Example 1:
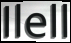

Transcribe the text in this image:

Ilell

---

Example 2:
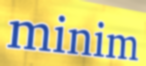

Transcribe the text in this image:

minim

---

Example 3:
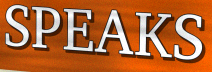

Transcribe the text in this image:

SPEAKS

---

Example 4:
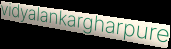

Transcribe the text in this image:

vidyalankargharpure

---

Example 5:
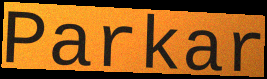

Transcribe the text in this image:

Parkar